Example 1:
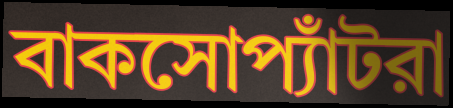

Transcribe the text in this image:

বাকসোপ্যাঁটরা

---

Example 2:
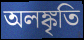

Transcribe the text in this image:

অলঙ্কৃতি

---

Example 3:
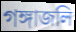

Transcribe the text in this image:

গঙ্গাজলি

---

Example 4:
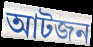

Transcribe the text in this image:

আটজন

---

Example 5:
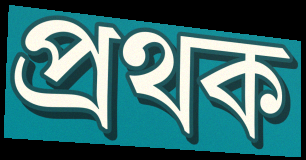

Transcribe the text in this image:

প্রথক